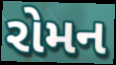
રોમન